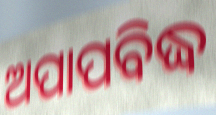
ଅପାପବିଦ୍ଧ